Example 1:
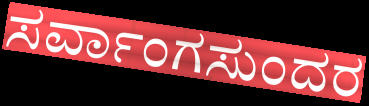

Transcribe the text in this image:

ಸರ್ವಾಂಗಸುಂದರ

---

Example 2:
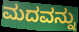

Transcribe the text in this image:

ಮದವನ್ನು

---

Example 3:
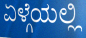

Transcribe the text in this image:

ಏಳ್ಗೆಯಲ್ಲಿ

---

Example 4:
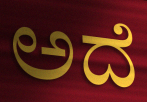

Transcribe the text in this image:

ಅದೆ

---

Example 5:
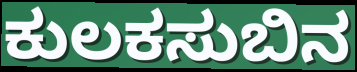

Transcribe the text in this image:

ಕುಲಕಸುಬಿನ